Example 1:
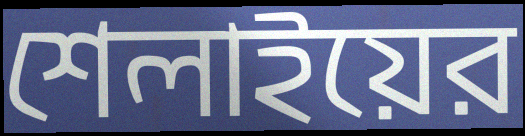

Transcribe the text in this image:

শেলাইয়ের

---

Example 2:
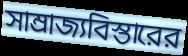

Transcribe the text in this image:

সাম্রাজ্যবিস্তারের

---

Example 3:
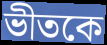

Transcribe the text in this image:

ভীতকে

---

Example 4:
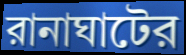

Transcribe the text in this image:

রানাঘাটের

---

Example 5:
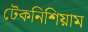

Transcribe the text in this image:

টেকনিশিয়াম